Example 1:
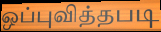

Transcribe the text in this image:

ஒப்புவித்தபடி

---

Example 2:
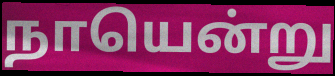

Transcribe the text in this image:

நாயென்று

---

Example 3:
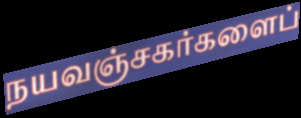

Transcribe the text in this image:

நயவஞ்சகர்களைப்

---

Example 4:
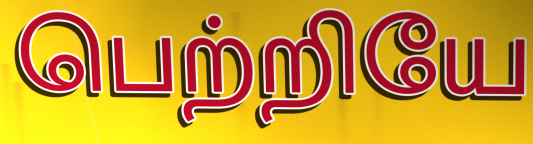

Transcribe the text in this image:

பெற்றியே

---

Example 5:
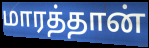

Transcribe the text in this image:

மாரத்தான்